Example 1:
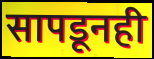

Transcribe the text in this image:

सापडूनही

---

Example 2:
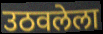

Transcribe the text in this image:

उठवलेला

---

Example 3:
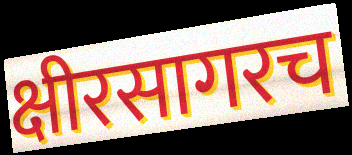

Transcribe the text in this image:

क्षीरसागरच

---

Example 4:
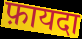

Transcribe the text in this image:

फ़ायदा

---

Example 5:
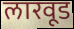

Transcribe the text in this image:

लारवूड